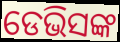
ଡେଭିସଙ୍କ